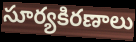
సూర్యకిరణాలు